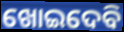
ଖୋଇଦେବି